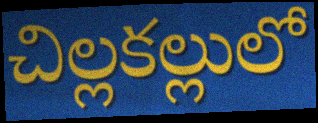
చిల్లకల్లులో